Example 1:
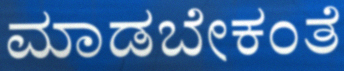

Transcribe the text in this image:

ಮಾಡಬೇಕಂತೆ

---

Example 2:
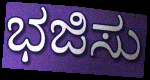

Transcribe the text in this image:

ಭಜಿಸು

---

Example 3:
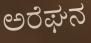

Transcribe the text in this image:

ಅರೆಘನ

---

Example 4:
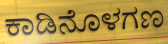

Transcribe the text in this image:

ಕಾಡಿನೊಳಗಣ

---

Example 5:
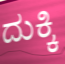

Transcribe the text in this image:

ದುಕ್ಕಿ